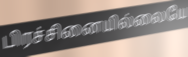
பிரச்சினையில்லையே